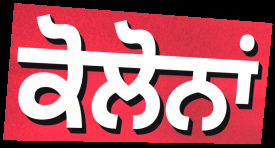
ਕੋਲੋਨਾਂ